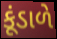
કૂંડાળે